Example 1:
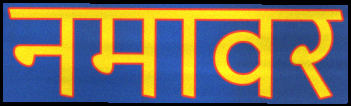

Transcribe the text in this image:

नमावर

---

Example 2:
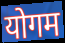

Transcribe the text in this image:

योगम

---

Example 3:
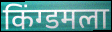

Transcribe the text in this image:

किंग्डमला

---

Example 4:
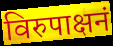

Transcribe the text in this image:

विरुपाक्षनं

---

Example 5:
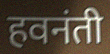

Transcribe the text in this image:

हवनंती